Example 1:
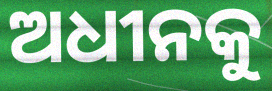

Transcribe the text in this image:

ଅଧୀନକୁ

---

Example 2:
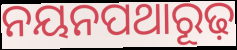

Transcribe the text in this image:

ନୟନପଥାରୂଢ଼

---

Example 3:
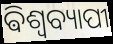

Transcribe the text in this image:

ଵିଶ୍ୱବ୍ୟାପୀ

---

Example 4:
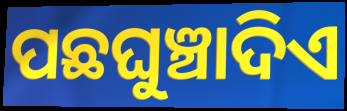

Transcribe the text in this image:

ପଛଘୁଞ୍ଚାଦିଏ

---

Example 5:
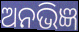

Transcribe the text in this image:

ଅନଭିଜ୍ଞ